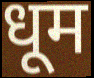
धूम